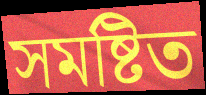
সমষ্টিত